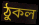
ঠুকল